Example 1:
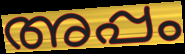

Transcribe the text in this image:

അപ്പം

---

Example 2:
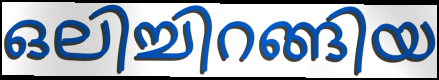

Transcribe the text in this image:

ഒലിച്ചിറങ്ങിയ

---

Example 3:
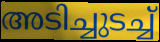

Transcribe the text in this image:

അടിച്ചുടച്ച്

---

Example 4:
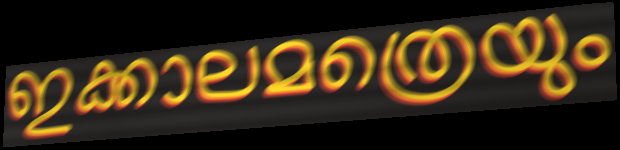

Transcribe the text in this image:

ഇക്കാലമത്രെയും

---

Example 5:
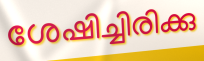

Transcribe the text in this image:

ശേഷിച്ചിരിക്കു